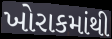
ખોરાકમાંથી